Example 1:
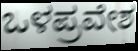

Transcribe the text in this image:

ಒಳಪ್ರವೇಶ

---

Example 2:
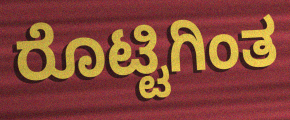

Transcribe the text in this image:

ರೊಟ್ಟಿಗಿಂತ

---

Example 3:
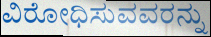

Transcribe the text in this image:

ವಿರೋಧಿಸುವವರನ್ನು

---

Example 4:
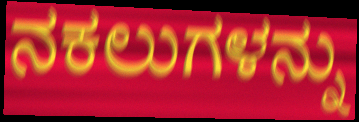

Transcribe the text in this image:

ನಕಲುಗಳನ್ನು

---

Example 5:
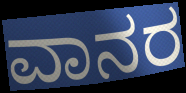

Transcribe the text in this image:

ವಾನರ